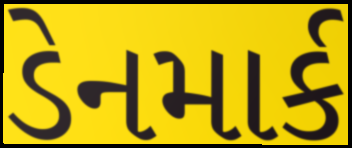
ડેનમાર્ક